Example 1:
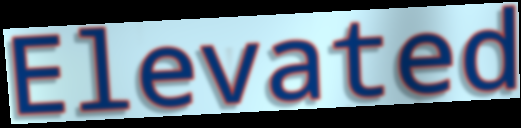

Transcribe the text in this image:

Elevated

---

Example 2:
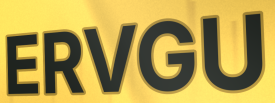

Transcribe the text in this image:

ERVGU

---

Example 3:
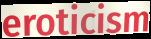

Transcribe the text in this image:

eroticism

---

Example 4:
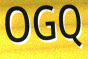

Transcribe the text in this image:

OGQ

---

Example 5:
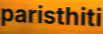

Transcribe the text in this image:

paristhiti